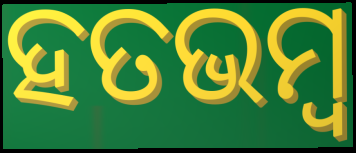
ହତଭମ୍ୱ